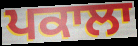
ਪਕਾਲਾ